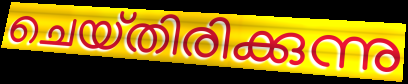
ചെയ്‌തിരിക്കുന്നു